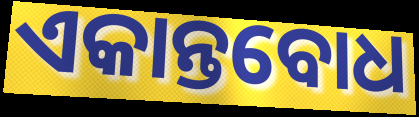
ଏକାନ୍ତବୋଧ